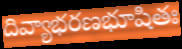
దివ్యాభరణభూషితః